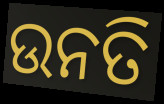
ଉନତି